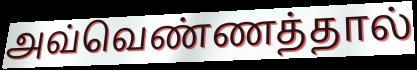
அவ்வெண்ணத்தால்